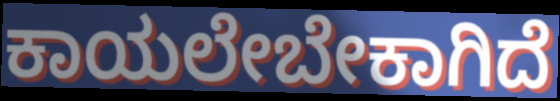
ಕಾಯಲೇಬೇಕಾಗಿದೆ